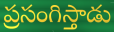
ప్రసంగిస్తాడు